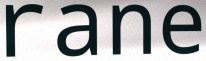
rane